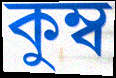
কুম্ব